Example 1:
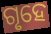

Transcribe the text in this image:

ଗୃହେ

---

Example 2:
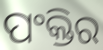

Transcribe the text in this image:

ପଂକ୍ତିର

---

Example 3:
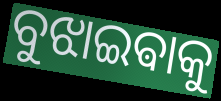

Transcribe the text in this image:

ବୁଝାଇଵାକୁ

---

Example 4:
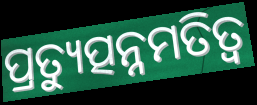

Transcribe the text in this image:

ପ୍ରତ୍ୟୁତ୍ପନ୍ନମତିତ୍ୱ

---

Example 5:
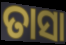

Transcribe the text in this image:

ତାସା